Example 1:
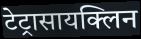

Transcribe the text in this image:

टेट्रासायक्लिन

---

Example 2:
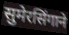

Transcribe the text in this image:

सुमेरसिंगाने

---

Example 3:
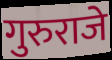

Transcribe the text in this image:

गुरुराजे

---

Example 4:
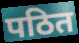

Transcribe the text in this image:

पठित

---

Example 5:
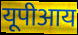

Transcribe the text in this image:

यूपीआय